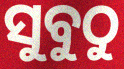
ସୁବୁଠୁ